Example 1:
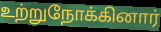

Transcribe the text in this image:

உற்றுநோக்கினார்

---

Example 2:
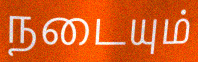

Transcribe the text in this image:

நடையும்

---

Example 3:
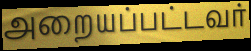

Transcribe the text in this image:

அறையப்பட்டவர்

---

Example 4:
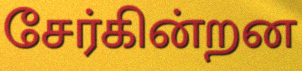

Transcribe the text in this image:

சேர்கின்றன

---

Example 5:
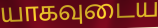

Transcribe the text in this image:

யாகவுடைய